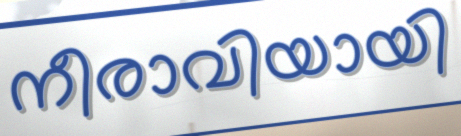
നീരാവിയായി